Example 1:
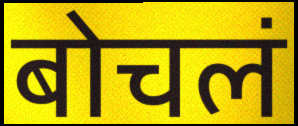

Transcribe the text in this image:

बोचलं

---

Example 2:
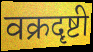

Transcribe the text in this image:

वक्रदृष्टी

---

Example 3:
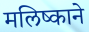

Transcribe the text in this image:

मलिष्काने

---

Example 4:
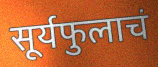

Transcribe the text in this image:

सूर्यफुलाचं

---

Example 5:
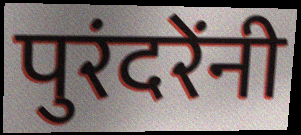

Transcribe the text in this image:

पुरंदरेंनी